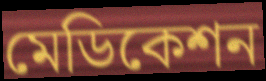
মেডিকেশন